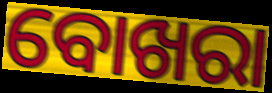
ବୋଖରା